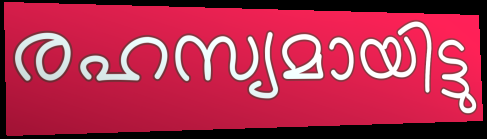
രഹസ്യമായിട്ടു